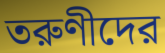
তরুণীদের